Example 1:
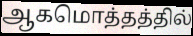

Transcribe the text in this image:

ஆகமொத்தத்தில்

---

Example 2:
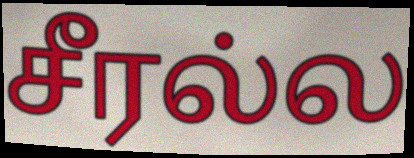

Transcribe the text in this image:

சீரல்ல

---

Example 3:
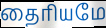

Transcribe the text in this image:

தைரியமே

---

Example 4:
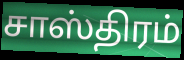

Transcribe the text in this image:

சாஸ்திரம்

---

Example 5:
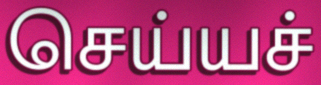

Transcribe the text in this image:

செய்யச்